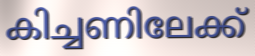
കിച്ചണിലേക്ക്